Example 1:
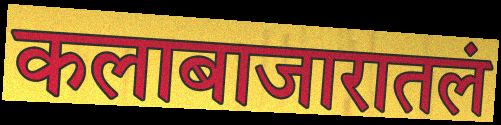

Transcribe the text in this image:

कलाबाजारातलं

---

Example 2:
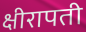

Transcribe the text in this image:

क्षीरापती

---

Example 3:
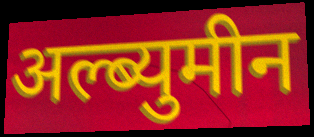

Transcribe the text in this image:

अल्ब्युमीन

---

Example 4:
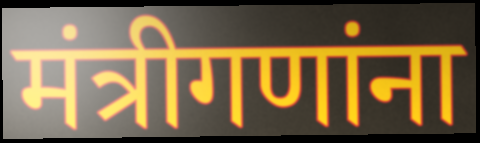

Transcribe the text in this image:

मंत्रीगणांना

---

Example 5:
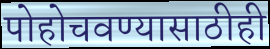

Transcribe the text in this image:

पोहोचवण्यासाठीही